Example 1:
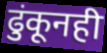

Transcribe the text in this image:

ढुंकूनही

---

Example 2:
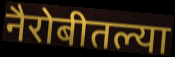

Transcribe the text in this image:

नैरोबीतल्या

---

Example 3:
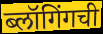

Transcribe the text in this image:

ब्लॉगिंगची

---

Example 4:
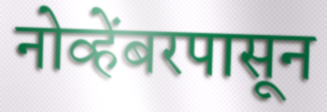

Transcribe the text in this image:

नोव्हेंबरपासून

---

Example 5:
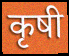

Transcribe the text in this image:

कृषी